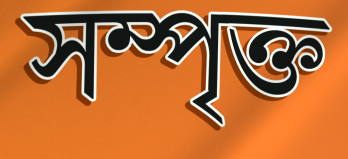
সম্পৃক্ত